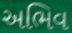
અભિવ